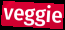
veggie